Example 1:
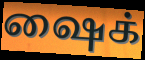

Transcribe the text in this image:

ஷைக்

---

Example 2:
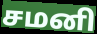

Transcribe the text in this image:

சமனி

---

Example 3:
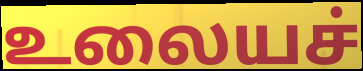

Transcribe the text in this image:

உலையச்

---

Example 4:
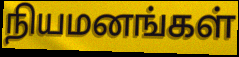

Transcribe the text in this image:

நியமனங்கள்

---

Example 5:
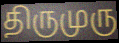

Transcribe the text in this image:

திருமுரு